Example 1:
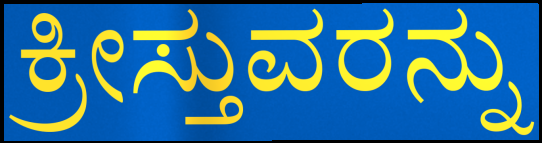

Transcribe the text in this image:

ಕ್ರೀಸ್ತುವರನ್ನು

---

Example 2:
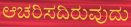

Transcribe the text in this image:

ಆಚರಿಸದಿರುವುದು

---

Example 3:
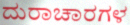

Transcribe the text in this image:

ದುರಾಚಾರಗಳ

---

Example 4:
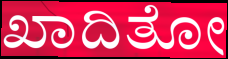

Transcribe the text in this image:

ಖಾದಿತೋ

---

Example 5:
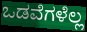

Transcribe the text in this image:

ಒಡವೆಗಳೆಲ್ಲ